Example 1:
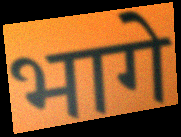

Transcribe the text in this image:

भागे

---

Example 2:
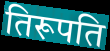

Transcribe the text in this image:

तिरूपति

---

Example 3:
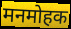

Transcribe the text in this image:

मनमोहक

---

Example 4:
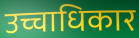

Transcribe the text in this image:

उच्‍चाधिकार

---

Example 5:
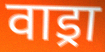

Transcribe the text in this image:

वाड्रा